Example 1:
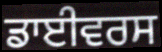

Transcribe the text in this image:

ਡਾਈਵਰਸ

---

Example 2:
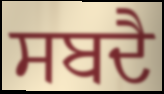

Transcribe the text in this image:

ਸਬਦੈ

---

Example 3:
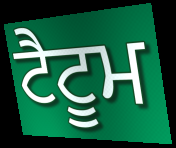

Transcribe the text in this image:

ਟੈਟੂਮ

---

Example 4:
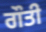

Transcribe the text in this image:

ਗੌਤੀ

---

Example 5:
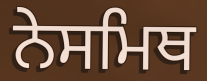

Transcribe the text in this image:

ਨੇਸਮਿਥ